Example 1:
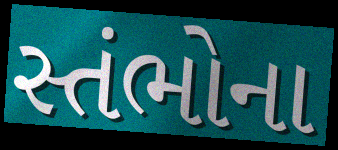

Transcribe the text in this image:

સ્તંભોના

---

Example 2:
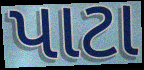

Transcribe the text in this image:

પાટા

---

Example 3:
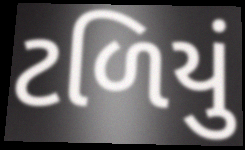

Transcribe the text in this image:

ટળિયું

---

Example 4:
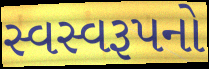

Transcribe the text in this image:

સ્વસ્વરૂપનો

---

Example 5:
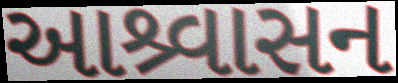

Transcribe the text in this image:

આશ્ર્વાસન